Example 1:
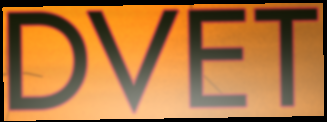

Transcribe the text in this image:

DVET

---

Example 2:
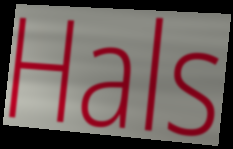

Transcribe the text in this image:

Hals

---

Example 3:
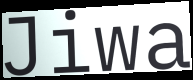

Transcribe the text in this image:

Jiwa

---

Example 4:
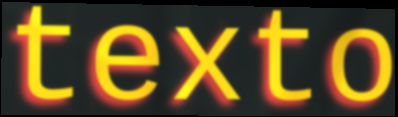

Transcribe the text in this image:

texto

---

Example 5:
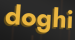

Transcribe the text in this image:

doghi